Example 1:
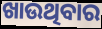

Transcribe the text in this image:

ଖାଉଥିବାର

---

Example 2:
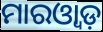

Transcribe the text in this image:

ମାରଓ୍ୱାଡ଼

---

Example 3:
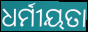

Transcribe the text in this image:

ଧର୍ମୀୟତା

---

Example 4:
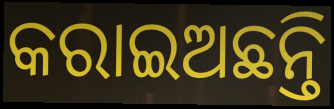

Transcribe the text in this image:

କରାଇଅଛନ୍ତି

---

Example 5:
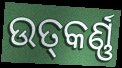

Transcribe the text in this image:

ଉତ୍‍କର୍ଣ୍ଣ